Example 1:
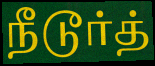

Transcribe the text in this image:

நீடூர்த்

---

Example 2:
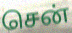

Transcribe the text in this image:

சென்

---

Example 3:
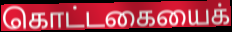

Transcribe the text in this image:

கொட்டகையைக்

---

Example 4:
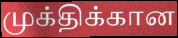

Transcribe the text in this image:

முக்திக்கான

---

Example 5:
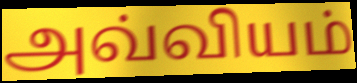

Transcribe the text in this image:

அவ்வியம்